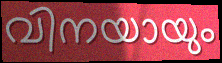
വിനയായും